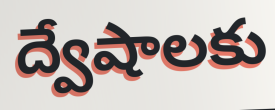
ద్వేషాలకు